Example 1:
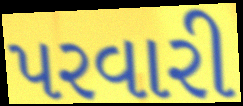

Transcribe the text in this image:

પરવારી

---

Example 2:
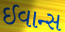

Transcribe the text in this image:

ઈવાન્સ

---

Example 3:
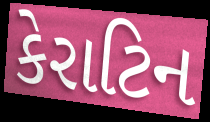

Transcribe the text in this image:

કેરાટિન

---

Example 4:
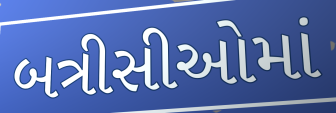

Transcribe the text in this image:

બત્રીસીઓમાં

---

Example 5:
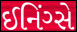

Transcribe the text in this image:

ઈનિંગ્સે